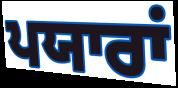
ਪਯਾਰਾਂ